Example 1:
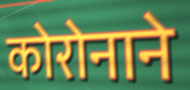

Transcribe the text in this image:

कोरोनाने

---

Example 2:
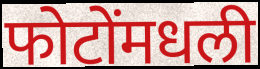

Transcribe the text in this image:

फोटोंमधली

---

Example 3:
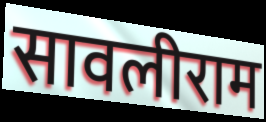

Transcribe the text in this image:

सावलीराम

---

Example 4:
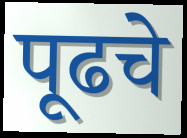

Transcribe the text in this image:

पूढचे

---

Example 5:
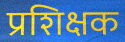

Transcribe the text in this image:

प्रशिक्षक